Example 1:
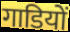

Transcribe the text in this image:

गाडियों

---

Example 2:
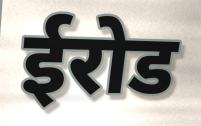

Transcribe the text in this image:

ईरोड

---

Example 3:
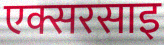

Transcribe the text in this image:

एक्सरसाइ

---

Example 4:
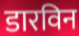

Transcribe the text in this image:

डारविन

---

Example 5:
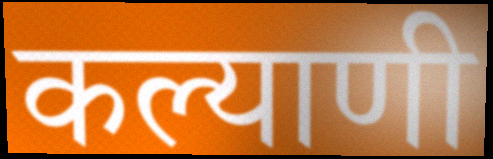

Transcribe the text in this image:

कल्याणी